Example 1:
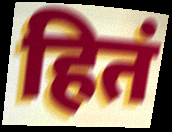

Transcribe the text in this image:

हितं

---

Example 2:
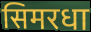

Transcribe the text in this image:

सिमरधा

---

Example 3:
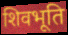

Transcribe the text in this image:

शिवभूति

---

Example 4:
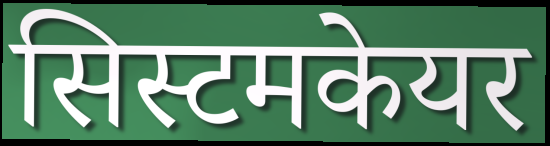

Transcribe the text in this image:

सिस्टमकेयर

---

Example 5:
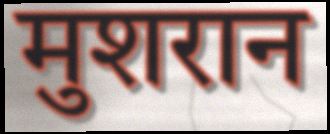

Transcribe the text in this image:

मुशरान